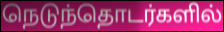
நெடுந்தொடர்களில்